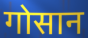
गोसान